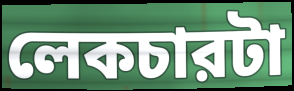
লেকচারটা